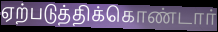
ஏற்படுத்திக்கொண்டார்